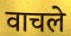
वाचले